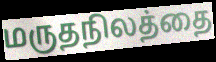
மருதநிலத்தை